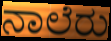
ನಾಲೆರು